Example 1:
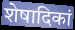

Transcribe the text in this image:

शेषादिकां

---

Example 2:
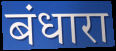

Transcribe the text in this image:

बंधारा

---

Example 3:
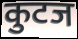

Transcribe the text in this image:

कुटज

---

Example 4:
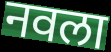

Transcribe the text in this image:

नवला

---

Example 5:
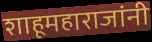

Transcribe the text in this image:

शाहूमहाराजांनी